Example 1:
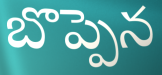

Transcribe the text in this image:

బొప్పెన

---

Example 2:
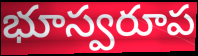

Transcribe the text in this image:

భూస్వరూప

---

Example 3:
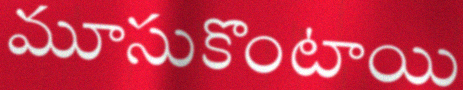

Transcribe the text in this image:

మూసుకొంటాయి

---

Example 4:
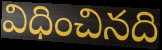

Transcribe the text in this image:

విధించినది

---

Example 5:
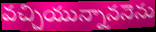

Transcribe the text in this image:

వచ్చియున్నాననెను